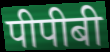
पीपीबी